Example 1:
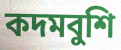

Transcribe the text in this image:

কদমবুশি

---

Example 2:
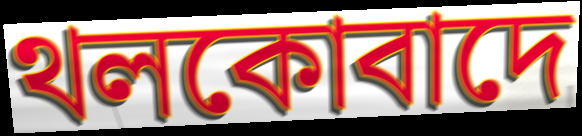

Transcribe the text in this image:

থলকোবাদে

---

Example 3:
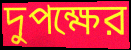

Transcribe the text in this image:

দুপক্ষের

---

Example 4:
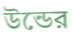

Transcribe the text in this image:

উন্ডের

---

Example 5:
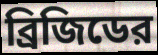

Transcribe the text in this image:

ব্রিজিডের